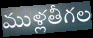
ముళ్లతీగల